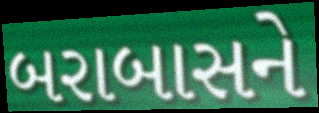
બરાબાસને